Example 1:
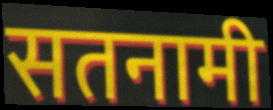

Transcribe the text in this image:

सतनामी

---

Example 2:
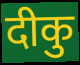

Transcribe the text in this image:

दीकु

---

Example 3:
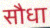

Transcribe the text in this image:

सौधा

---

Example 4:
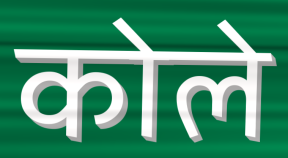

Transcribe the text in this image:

कोले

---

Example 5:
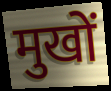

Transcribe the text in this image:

मुखों